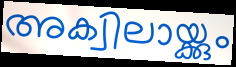
അക്വിലായ്ക്കും